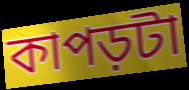
কাপড়টা